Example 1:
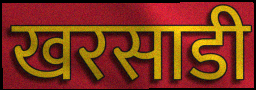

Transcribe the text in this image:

खरसाडी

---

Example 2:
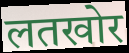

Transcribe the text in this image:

लतखोर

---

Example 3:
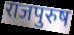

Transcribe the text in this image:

राजपुरुष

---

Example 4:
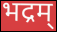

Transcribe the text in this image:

भद्रम्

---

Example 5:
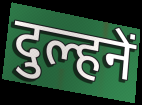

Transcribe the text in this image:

दुल्हनें